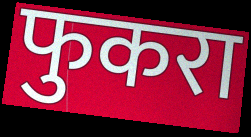
फुकरा